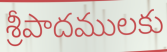
శ్రీపాదములకు